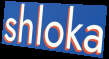
shloka